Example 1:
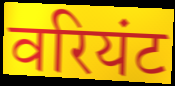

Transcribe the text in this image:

वरियंट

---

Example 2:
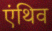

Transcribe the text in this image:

एंथिव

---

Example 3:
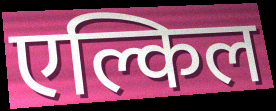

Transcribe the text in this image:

एल्किल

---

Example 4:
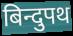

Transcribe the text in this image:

बिन्दुपथ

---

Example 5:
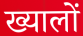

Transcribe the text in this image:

ख्यालों